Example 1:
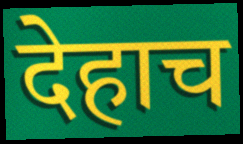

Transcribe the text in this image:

देहाच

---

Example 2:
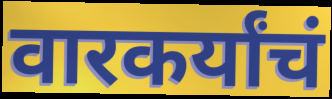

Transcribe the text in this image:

वारकर्यांचं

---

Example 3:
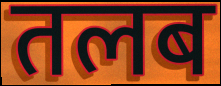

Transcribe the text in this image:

तलब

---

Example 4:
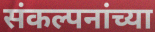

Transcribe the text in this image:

संकल्पनांच्या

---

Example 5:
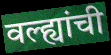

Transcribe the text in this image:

वल्ह्यांची